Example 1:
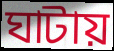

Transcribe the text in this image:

ঘাটায়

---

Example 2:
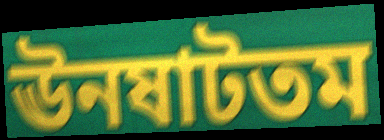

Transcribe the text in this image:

ঊনষাটতম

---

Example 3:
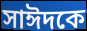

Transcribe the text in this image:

সাঈদকে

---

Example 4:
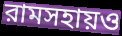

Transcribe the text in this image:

রামসহায়ও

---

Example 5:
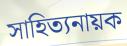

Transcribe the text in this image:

সাহিত্যনায়ক